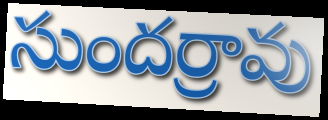
సుందర్రావు